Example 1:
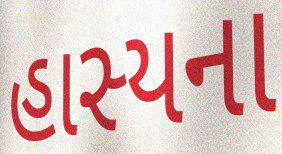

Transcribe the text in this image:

હાસ્યના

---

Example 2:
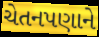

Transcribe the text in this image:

ચેતનપણાને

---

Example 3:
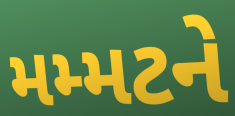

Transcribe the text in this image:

મમ્મટને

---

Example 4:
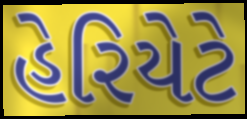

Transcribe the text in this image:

હેરિયેટે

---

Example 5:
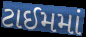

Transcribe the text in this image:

ટાઈમમાં